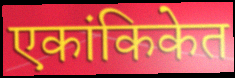
एकांकिकेत